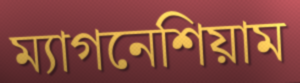
ম্যাগনেশিয়াম